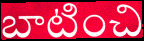
బాటించి